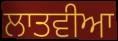
ਲਾਤਵੀਆ